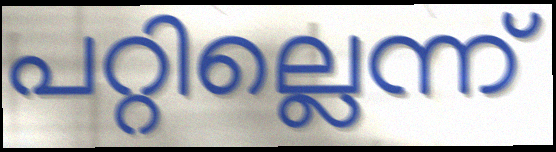
പറ്റില്ലെന്ന്